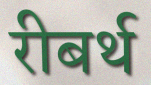
रीबर्थ